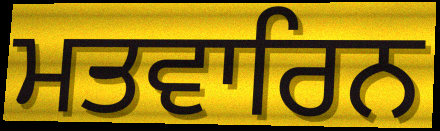
ਮਤਵਾਰਿਨ